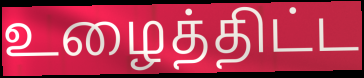
உழைத்திட்ட